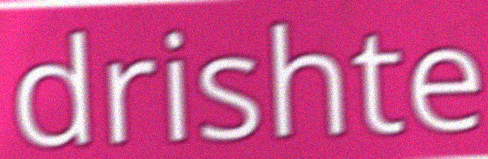
drishte